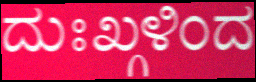
ದುಃಖ್ಗಳಿಂದ